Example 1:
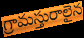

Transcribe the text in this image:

గ్రామస్తురాలైన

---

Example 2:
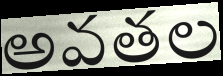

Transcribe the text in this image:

అవతల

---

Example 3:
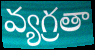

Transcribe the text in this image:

వ్యగ్రతా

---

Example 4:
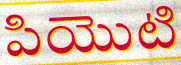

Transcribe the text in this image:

పియొటి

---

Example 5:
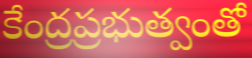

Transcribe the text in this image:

కేంద్రప్రభుత్వంతో